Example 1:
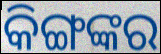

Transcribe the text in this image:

କିଙ୍ଗଙ୍କର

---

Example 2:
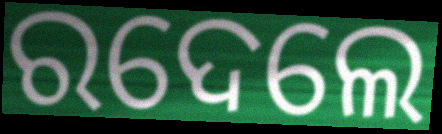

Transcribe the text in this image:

ରଦେଲେ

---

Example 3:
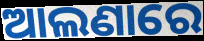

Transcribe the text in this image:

ଆଲଣାରେ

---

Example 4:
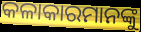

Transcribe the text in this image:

କଳାକାରମାନଙ୍କୁ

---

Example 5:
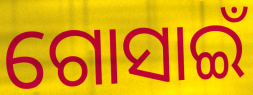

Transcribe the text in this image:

ଗୋସାଇଁ